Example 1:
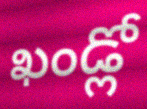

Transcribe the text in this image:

ఖండ్లో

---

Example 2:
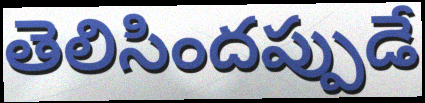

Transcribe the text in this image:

తెలిసిందప్పుడే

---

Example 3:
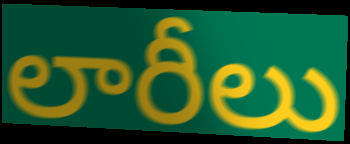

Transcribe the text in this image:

లారీలు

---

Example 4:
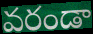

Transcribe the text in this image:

వరండా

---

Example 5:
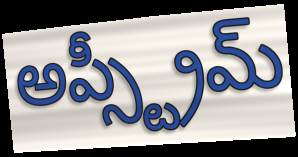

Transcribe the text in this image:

అప్స్ట్రీమ్